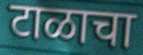
टाळाचा